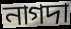
নাগদা